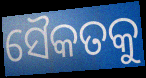
ସୈକତକୁ